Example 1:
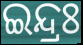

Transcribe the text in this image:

ଇନ୍ଦ୍ରଃ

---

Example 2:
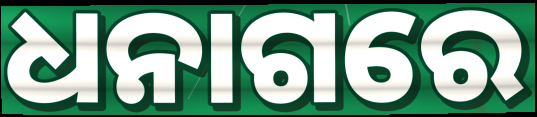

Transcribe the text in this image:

ଧନାଗରେ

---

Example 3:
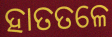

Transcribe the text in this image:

ହାତତଳେ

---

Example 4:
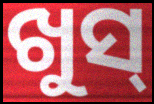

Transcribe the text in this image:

ଖୁସ୍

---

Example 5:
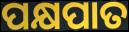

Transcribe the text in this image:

ପକ୍ଷପାତ